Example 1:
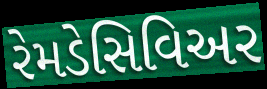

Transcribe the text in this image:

રેમડેસિવિઅર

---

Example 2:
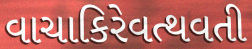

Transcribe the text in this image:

વાચાકિરેવત્થવતી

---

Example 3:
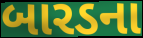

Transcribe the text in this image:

બારડના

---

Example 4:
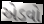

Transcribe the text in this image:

એડવો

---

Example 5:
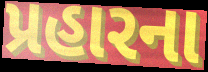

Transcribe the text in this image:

પ્રહારના